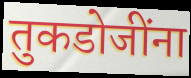
तुकडोजींना